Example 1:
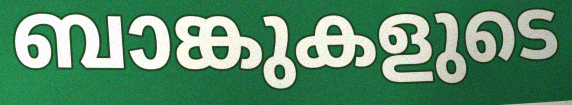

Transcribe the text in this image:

ബാങ്കുകളുടെ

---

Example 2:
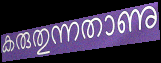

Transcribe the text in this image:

കരുതുന്നതാണു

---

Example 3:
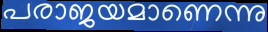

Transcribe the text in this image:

പരാജയമാണെന്നു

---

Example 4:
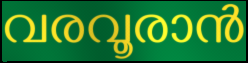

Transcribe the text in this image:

വരവൂരാൻ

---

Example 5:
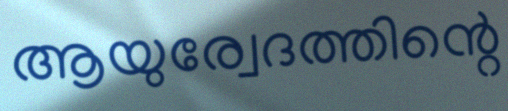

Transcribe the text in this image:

ആയുര്വേദത്തിന്റെ